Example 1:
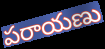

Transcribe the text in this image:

పరాయణు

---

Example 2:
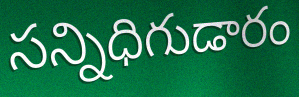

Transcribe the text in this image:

సన్నిధిగుడారం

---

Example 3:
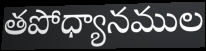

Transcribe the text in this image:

తపోధ్యానముల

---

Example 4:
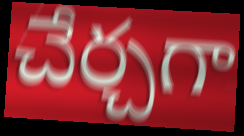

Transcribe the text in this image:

చేర్చగా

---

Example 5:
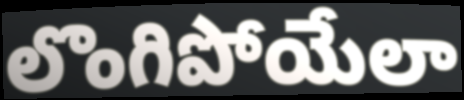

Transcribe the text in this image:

లొంగిపోయేలా